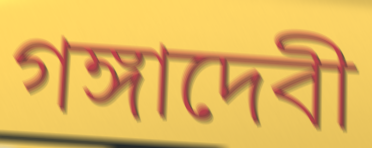
গঙ্গাদেবী